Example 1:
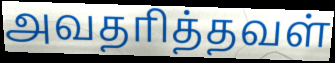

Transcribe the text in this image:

அவதரித்தவள்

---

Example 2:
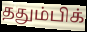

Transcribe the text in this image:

ததும்பிக்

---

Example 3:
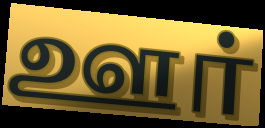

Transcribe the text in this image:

ஊர்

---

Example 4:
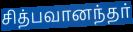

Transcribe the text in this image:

சித்பவானந்தர்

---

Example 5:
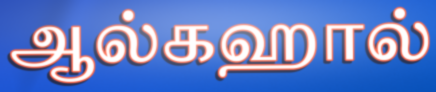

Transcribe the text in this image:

ஆல்கஹால்